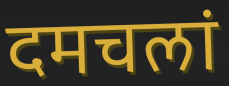
दमचलां